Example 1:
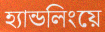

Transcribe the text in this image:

হ্যান্ডলিংয়ে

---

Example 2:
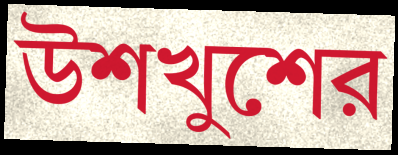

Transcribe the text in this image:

উশখুশের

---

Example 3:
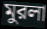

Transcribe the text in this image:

মুরলা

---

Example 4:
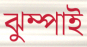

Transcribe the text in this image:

ঝুম্পাই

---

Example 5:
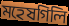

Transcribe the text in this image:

মহেষগিলি